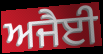
ਅਜੈਈ